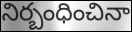
నిర్బంధించినా